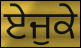
ਏਜੁਕੇ